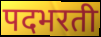
पदभरती